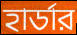
হার্ডার